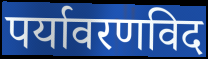
पर्यावरणविद